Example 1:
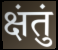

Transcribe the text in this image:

क्षंतुं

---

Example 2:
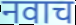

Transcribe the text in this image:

नवाच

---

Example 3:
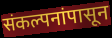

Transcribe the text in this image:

संकल्पनांपासून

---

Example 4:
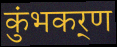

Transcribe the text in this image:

कुंभकर्ण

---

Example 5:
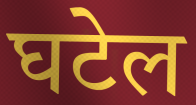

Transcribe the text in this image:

घटेल